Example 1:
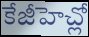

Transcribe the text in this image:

కేజీహెచ్లో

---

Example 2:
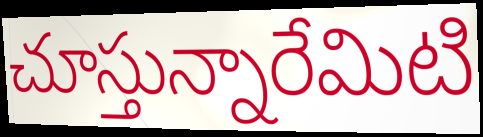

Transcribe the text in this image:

చూస్తున్నారేమిటి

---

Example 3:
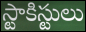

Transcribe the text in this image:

స్టాకిస్టులు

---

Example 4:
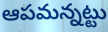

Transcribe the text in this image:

ఆపమన్నట్టు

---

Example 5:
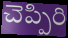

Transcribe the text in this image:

చెప్పిరి